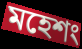
মহেশং